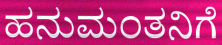
ಹನುಮಂತನಿಗೆ